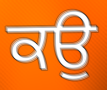
ਕਉ